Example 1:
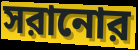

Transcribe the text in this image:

সরানোর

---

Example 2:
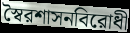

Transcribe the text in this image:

স্বৈরশাসনবিরোধী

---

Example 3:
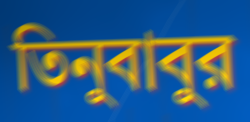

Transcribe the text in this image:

তিনুবাবুর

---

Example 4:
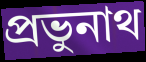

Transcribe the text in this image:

প্রভুনাথ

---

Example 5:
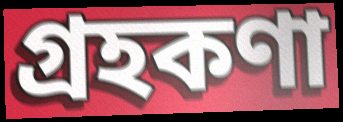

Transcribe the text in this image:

গ্রহকণা